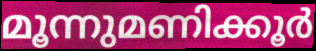
മൂന്നുമണിക്കൂർ